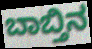
ಬಾಬ್ತಿನ